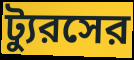
ট্যুরসের